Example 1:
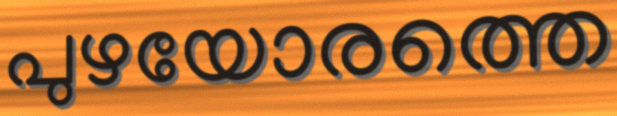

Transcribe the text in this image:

പുഴയോരത്തെ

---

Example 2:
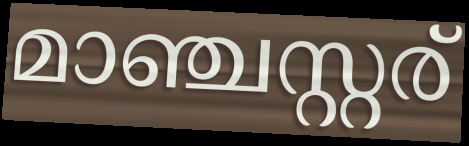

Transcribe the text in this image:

മാഞ്ചസ്റ്റര്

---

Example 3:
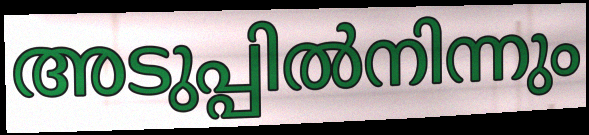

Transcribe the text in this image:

അടുപ്പിൽനിന്നും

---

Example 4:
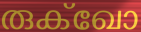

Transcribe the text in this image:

രുക്ഖോ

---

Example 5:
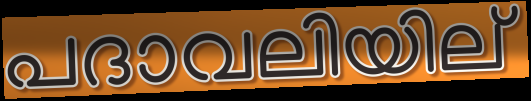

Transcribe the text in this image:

പദാവലിയില്